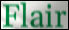
Flair